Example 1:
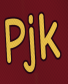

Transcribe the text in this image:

Pjk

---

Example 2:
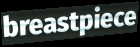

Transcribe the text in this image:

breastpiece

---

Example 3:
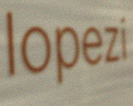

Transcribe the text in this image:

lopezi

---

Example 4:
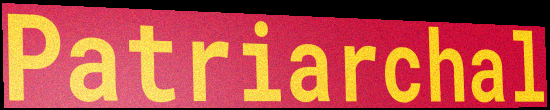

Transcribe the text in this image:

Patriarchal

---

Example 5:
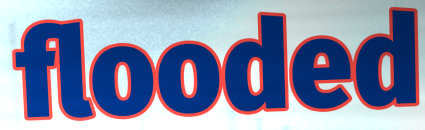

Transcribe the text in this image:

flooded